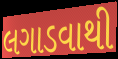
લગાડવાથી